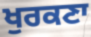
ਖੁਰਕਣਾ